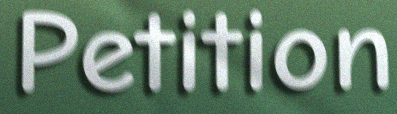
Petition